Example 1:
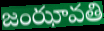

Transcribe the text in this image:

జంఝావతి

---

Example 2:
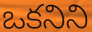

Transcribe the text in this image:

ఒకనిని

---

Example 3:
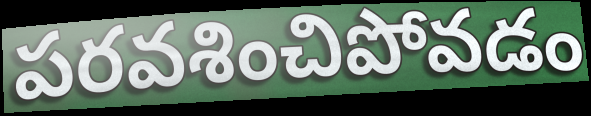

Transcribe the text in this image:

పరవశించిపోవడం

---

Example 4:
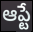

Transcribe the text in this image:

ఆప్టే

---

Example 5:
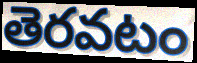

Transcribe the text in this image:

తెరవటం